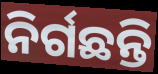
ନିର୍ଗଛନ୍ତି